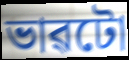
ভাৱটো